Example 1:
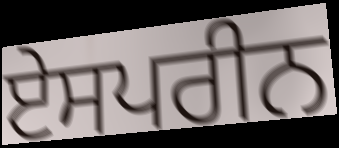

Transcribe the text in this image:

ਏਸਪਰੀਨ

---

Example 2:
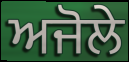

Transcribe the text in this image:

ਅਜੋਲੇ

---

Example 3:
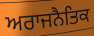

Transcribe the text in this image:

ਅਰਾਜਨੈਤਿਕ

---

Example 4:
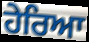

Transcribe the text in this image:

ਹੇਰਿਆ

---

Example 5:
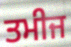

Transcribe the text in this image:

ਤਮੀਜ